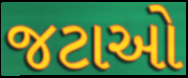
જટાઓ